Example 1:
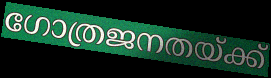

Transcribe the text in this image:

ഗോത്രജനതയ്ക്ക്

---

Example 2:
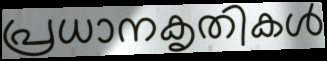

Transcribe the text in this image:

പ്രധാനകൃതികൾ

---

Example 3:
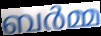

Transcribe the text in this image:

ബർമ്മ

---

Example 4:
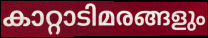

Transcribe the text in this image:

കാറ്റാടിമരങ്ങളും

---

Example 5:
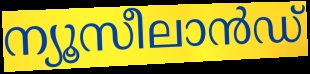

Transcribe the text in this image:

ന്യൂസീലാൻഡ്